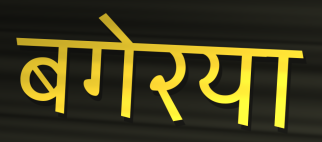
बगेरया